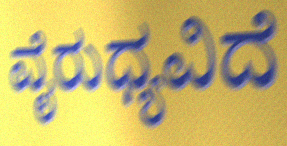
ವೈರುಧ್ಯವಿದೆ